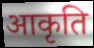
आकृति